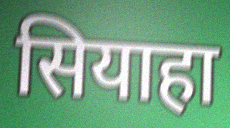
सियाहा